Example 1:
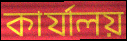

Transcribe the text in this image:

কার্যালয়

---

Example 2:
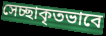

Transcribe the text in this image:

সেচ্ছাকৃতভাবে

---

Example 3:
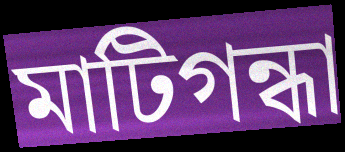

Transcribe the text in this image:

মাটিগন্ধা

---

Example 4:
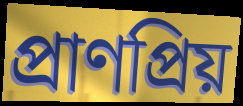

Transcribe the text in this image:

প্রাণপ্রিয়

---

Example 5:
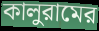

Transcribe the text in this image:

কালুরামের